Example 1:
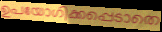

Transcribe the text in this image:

ഉപയോഗിക്കപ്പെടാതെ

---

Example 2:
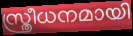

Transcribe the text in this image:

സ്ത്രീധനമായി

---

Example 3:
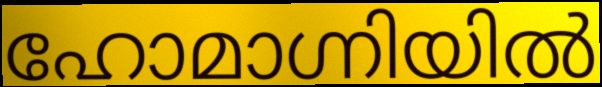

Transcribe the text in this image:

ഹോമാഗ്നിയിൽ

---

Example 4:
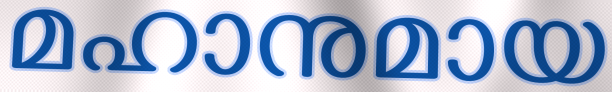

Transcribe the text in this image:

മഹാനുമായ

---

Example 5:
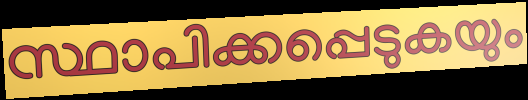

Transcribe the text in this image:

സ്ഥാപിക്കപ്പെടുകയും